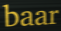
baar